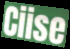
Ciise